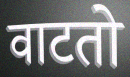
वाटतो